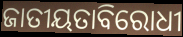
ଜାତୀୟତାବିରୋଧୀ